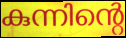
കുന്നിന്റെ